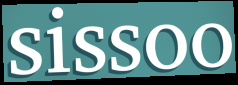
sissoo